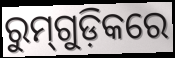
ରୁମ୍‌ଗୁଡ଼ିକରେ